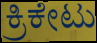
ಕ್ರಿಕೇಟು